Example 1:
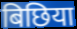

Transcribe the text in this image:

बिछिया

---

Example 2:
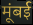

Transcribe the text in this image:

मूंबई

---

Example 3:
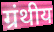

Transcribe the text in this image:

ग्रंथीय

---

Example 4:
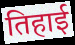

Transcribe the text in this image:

तिहाई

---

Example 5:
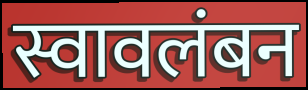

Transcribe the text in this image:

स्वावलंबन